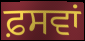
ਫ਼ਸਵਾਂ